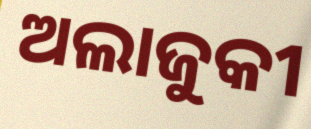
ଅଲାଜୁକୀ